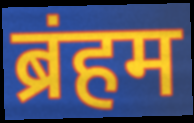
ब्रंहम